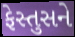
ફેસ્તુસને